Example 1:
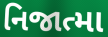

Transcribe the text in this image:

નિજાત્મા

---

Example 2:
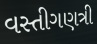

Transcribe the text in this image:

વસ્તીગણત્રી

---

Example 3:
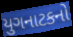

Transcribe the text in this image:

યુગનાટકનો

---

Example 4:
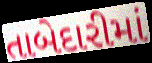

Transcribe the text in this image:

તાબેદારીમાં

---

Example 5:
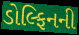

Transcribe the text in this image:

ડોલ્ફિનની